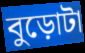
বুড়োটা